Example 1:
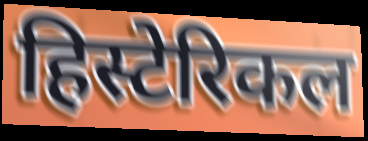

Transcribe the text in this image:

हिस्टेरिकल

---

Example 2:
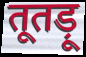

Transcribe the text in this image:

तूतड़ू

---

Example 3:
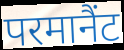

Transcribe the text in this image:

परमानैंट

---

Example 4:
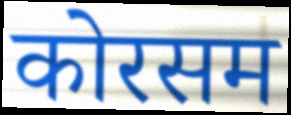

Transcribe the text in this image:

कोरसम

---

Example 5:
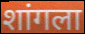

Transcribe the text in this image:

शांगला